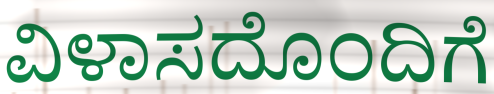
ವಿಳಾಸದೊಂದಿಗೆ